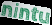
nintu